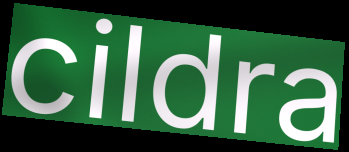
cildra